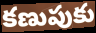
కణుపుకు